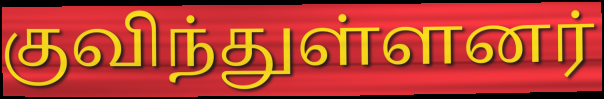
குவிந்துள்ளனர்